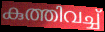
കുത്തിവച്ച്